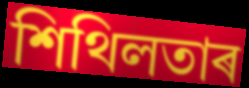
শিথিলতাৰ